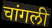
चांगली